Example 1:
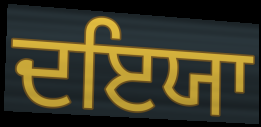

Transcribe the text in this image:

ਦਇਯਾ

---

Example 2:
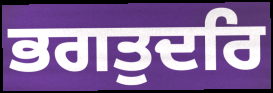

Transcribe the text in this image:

ਭਗਤੁਦਰਿ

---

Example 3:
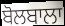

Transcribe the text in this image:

ਬੋਲਬਾਲਾ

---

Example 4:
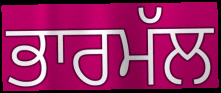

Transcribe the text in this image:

ਭਾਰਮੱਲ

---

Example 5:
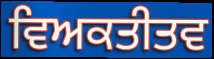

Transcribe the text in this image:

ਵਿਅਕਤੀਤਵ